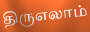
திருஎலாம்